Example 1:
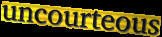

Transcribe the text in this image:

uncourteous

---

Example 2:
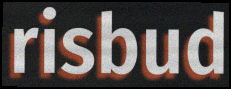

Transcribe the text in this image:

risbud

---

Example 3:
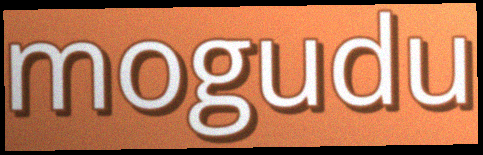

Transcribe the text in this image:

mogudu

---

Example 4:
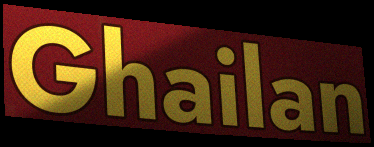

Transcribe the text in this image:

Ghailan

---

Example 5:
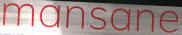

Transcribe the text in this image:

mansane